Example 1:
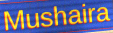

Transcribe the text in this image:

Mushaira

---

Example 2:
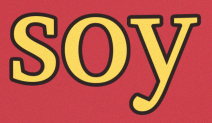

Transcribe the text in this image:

soy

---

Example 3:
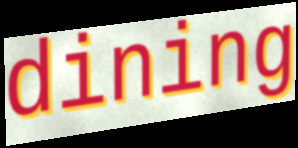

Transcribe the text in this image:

dining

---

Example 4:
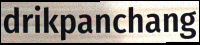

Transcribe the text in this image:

drikpanchang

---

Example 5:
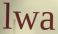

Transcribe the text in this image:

lwa